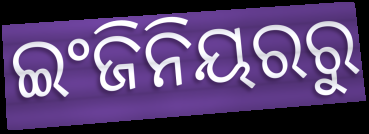
ଇଂଜିନିୟରରୁ